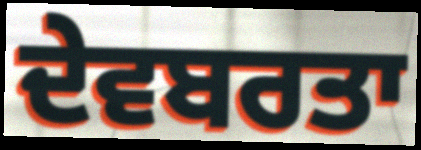
ਦੇਵਬਰਤਾ